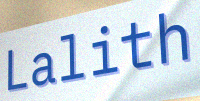
Lalith